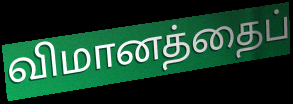
விமானத்தைப்